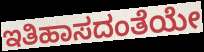
ಇತಿಹಾಸದಂತೆಯೇ